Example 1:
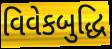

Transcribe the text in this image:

વિવેકબુદ્ધિ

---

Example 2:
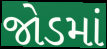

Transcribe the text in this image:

જોડમાં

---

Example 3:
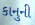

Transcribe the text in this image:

કાનુની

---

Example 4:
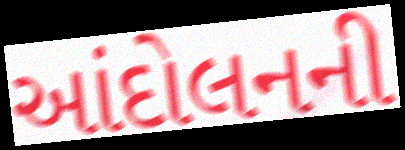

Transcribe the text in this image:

આંદોલનની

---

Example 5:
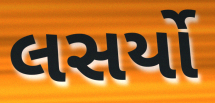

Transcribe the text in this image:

લસર્યો